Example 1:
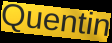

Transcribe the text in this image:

Quentin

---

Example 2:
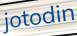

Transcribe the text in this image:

jotodin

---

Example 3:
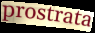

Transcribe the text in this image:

prostrata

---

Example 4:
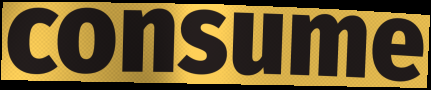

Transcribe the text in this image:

consume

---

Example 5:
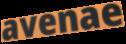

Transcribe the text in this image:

avenae